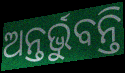
ଅନ୍ତର୍ଭୁବନ୍ତି